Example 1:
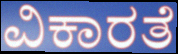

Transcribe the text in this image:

ವಿಕಾರತೆ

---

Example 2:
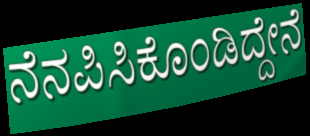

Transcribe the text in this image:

ನೆನಪಿಸಿಕೊಂಡಿದ್ದೇನೆ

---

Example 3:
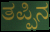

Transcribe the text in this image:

ತಪ್ಪಿನ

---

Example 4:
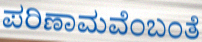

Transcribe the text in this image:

ಪರಿಣಾಮವೆಂಬಂತೆ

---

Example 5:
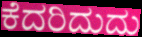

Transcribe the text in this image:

ಕೆದರಿದುದು